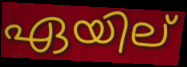
ഏയില്